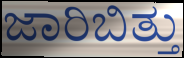
ಜಾರಿಬಿತ್ತು